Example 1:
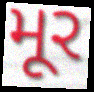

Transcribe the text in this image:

મૂર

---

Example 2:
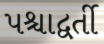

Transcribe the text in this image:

પશ્ચાદ્વર્તી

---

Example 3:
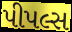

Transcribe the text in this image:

પીપલ્સ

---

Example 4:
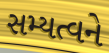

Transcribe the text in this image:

સમ્યત્વને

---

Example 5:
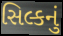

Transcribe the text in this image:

સિલ્કનું